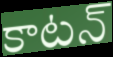
కాటన్